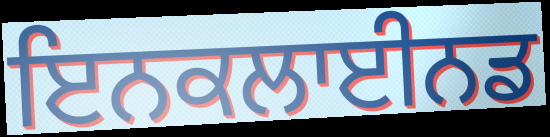
ਇਨਕਲਾਈਨਡ